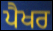
ਪੈਖਰ